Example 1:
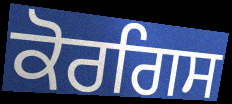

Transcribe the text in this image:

ਕੋਰਗਿਸ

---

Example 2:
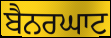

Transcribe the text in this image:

ਬੈਨਰਘਾਟ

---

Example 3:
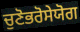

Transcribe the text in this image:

ਚੁਣੋਭਰੋਸੇਯੋਗ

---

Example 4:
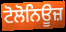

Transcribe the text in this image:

ਟੋਲੋਨਿਊਜ਼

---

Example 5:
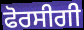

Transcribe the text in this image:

ਫੋਰਸੀਗੀ